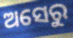
ଅସେରୁ